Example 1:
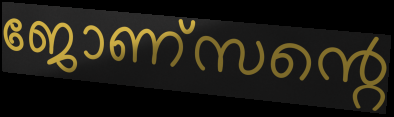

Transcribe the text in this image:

ജോണ്സന്റെ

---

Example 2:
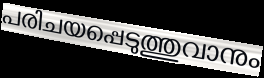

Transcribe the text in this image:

പരിചയപ്പെടുത്തുവാനും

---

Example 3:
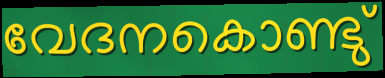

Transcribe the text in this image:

വേദനകൊണ്ടു്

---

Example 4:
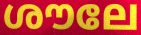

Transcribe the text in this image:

ശൗലേ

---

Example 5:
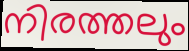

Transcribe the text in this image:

നിരത്തലും